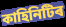
কাহিনিটিৰ